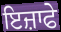
ਇਜ਼ਾਫੇ